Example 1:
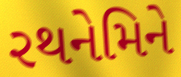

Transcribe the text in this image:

રથનેમિને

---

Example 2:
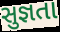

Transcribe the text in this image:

સુજ્ઞતા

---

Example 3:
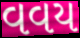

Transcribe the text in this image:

વવય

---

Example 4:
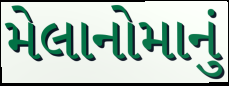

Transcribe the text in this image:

મેલાનોમાનું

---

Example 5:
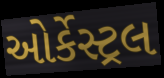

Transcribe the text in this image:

ઓર્કેસ્ટ્રલ